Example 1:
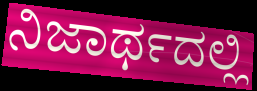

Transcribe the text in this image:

ನಿಜಾರ್ಥದಲ್ಲಿ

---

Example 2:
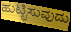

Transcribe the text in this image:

ಹುಟ್ಟಿಸುವುದು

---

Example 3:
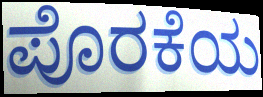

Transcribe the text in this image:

ಪೊರಕೆಯ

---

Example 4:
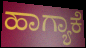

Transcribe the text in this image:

ಹಾಗ್ಯಾಕೆ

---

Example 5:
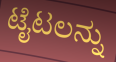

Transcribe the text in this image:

ಟೈಟಲನ್ನು